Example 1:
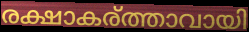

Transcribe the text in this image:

രക്ഷാകര്ത്താവായി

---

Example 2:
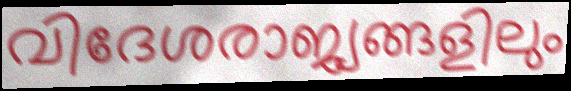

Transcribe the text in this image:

വിദേശരാജ്യങ്ങളിലും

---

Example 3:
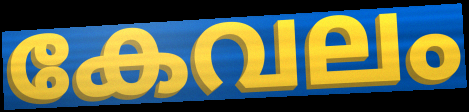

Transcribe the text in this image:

കേവലം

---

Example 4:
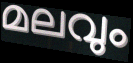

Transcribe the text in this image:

മലവും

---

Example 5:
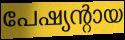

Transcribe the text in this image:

പേഷ്യന്റായ